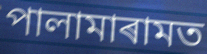
পালামাৰামত